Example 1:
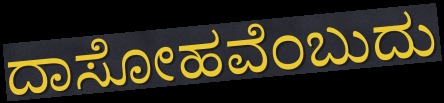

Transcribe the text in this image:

ದಾಸೋಹವೆಂಬುದು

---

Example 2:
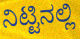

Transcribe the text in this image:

ನಿಟ್ಟಿನಲ್ಲಿ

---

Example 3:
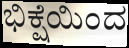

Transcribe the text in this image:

ಭಿಕ್ಷೆಯಿಂದ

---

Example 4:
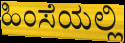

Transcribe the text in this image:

ಹಿಂಸೆಯಲ್ಲಿ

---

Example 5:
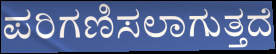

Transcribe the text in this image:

ಪರಿಗಣಿಸಲಾಗುತ್ತದೆ